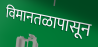
विमानतळापासून